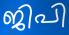
ജിപി